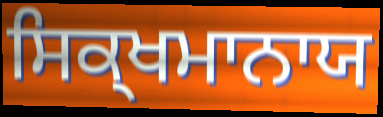
ਸਿਕ੍ਖਮਾਨਾਯ